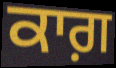
ਕਾਗ਼